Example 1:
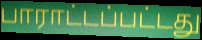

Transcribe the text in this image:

பாராட்டப்பட்டது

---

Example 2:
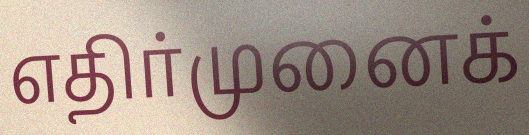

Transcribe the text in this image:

எதிர்முனைக்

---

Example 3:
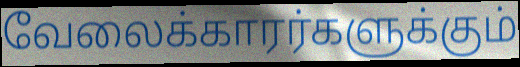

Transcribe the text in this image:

வேலைக்காரர்களுக்கும்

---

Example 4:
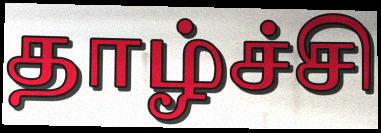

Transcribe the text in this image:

தாழ்ச்சி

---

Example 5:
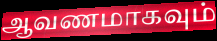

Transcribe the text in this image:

ஆவணமாகவும்